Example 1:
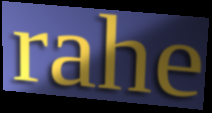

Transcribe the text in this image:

rahe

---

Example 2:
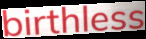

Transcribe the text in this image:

birthless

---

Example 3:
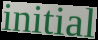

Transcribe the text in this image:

initial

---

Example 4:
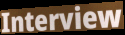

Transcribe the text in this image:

Interview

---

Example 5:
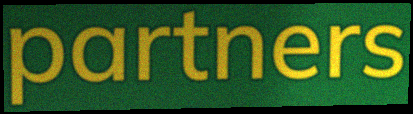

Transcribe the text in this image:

partners